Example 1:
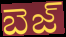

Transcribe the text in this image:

బెజ్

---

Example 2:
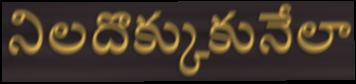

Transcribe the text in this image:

నిలదొక్కుకునేలా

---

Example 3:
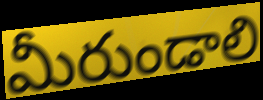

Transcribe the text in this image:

మీరుండాలి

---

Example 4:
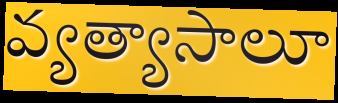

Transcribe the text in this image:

వ్యత్యాసాలూ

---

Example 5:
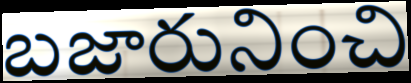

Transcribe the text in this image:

బజారునించి